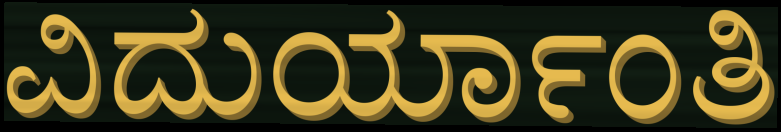
ವಿದುರ್ಯಾಂತಿ